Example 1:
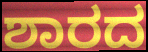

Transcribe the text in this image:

ಶಾರದ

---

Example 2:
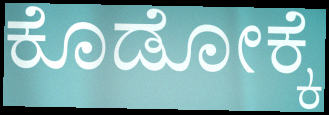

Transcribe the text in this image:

ಕೊಡೋಕ್ಕೆ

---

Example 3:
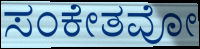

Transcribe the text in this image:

ಸಂಕೇತವೋ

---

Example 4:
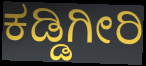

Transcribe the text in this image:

ಕಡ್ಡಿಗೀರಿ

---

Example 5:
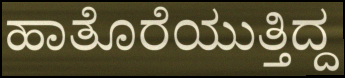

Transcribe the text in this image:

ಹಾತೊರೆಯುತ್ತಿದ್ದ